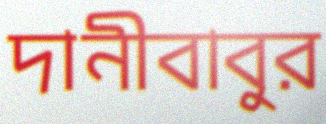
দানীবাবুর